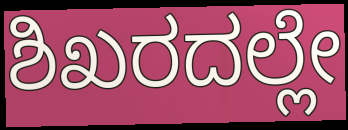
ಶಿಖರದಲ್ಲೇ